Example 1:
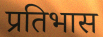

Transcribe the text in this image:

प्रतिभास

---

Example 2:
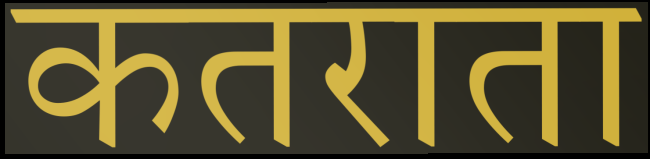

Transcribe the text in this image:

कतराता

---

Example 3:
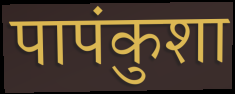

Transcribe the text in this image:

पापंकुशा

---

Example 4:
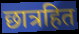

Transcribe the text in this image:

छात्रहित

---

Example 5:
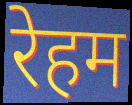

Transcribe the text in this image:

रेहम